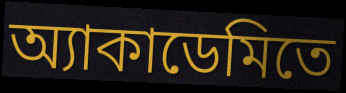
অ্যাকাডেমিতে